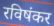
रविषंकर